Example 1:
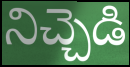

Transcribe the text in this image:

నిచ్చెడి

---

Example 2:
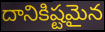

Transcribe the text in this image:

దానికిష్టమైన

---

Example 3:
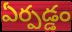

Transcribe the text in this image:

ఏర్పడ్డం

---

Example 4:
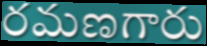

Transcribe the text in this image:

రమణగారు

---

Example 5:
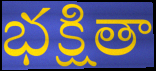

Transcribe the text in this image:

భక్షితా